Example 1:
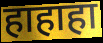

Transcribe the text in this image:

हाहाहा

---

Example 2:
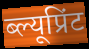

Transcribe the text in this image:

ब्ल्यूप्रिंट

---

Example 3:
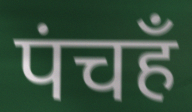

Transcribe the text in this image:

पंचहँ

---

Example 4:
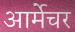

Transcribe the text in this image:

आर्मेचर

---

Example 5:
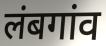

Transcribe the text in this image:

लंबगांव